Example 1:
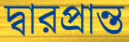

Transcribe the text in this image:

দ্বারপ্রান্ত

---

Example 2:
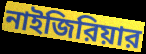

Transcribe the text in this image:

নাইজিরিয়ার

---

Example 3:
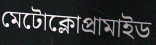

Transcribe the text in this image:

মেটোক্লোপ্রামাইড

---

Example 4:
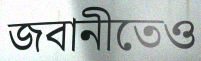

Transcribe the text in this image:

জবানীতেও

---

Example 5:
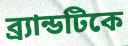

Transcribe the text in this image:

ব্র্যান্ডটিকে